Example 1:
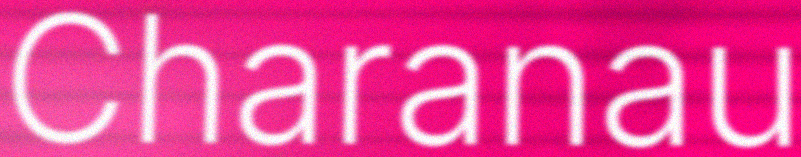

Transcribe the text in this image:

Charanau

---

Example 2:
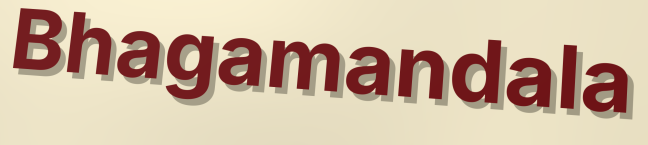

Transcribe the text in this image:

Bhagamandala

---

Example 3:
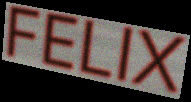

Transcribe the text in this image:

FELIX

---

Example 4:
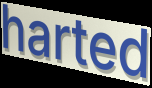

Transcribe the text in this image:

harted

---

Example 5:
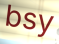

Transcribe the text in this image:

bsy